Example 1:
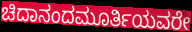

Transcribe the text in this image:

ಚಿದಾನಂದಮೂರ್ತಿಯವರೇ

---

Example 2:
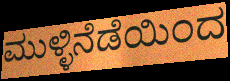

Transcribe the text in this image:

ಮುಳ್ಳಿನೆಡೆಯಿಂದ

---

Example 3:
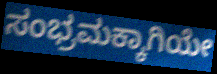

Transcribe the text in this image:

ಸಂಭ್ರಮಕ್ಕಾಗಿಯೇ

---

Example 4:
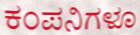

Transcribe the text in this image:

ಕಂಪನಿಗಳೂ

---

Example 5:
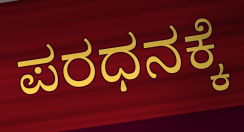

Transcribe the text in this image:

ಪರಧನಕ್ಕೆ